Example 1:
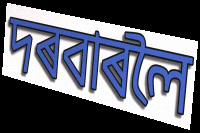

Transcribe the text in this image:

দৰবাৰলৈ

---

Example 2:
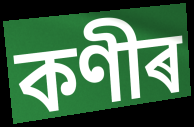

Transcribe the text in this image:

কণীৰ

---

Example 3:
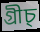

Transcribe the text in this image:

গ্ৰীচ্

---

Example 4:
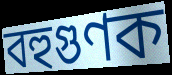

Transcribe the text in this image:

বহুগুণক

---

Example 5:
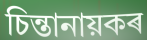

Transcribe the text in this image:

চিন্তানায়কৰ